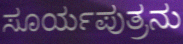
ಸೂರ್ಯಪುತ್ರನು